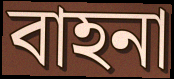
বাহনা